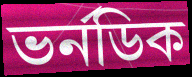
ভর্নডিক